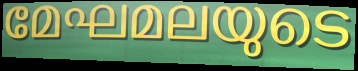
മേഘമലയുടെ